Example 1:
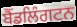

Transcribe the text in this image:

ਬੈੱਡਲਿੰਗਟਨ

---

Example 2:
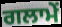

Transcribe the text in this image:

ਗਲਾਮੇਂ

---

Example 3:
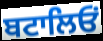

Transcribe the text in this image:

ਬਟਾਲਿਓਂ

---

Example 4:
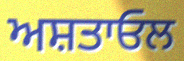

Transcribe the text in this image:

ਅਸ਼ਤਾਓਲ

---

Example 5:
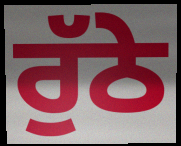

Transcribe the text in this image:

ਰੁੱਠੇ